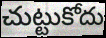
చుట్టుకోదు